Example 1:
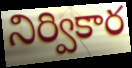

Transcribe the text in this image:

నిర్వికార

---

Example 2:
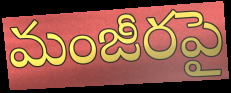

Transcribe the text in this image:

మంజీరపై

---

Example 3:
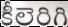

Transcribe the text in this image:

కీలెరిగి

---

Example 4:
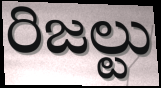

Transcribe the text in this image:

రిజల్టు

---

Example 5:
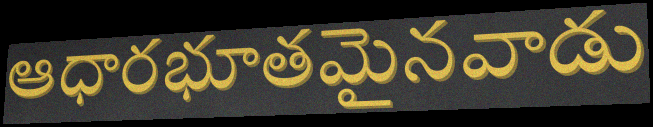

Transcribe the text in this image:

ఆధారభూతమైనవాడు